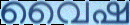
വൈഷ